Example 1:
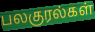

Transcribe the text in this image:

பலகுரல்கள்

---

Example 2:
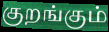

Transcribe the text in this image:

குறங்கும்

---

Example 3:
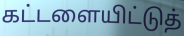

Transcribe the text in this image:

கட்டளையிட்டுத்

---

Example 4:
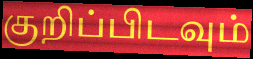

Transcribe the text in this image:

குறிப்பிடவும்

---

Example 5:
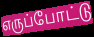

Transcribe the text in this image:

எருப்போட்டு